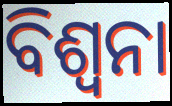
ବିଶ୍ୱନା